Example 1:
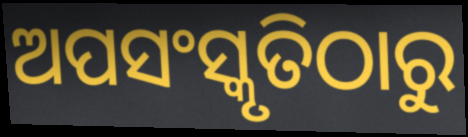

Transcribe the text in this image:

ଅପସଂସ୍କୃତିଠାରୁ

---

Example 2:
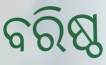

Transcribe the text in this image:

ବରିଷ୍ଠ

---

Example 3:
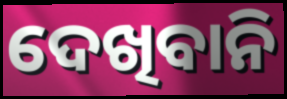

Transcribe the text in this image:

ଦେଖିବାନି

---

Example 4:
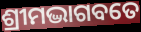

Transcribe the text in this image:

ଶ୍ରୀମଦ୍ଭାଗବତେ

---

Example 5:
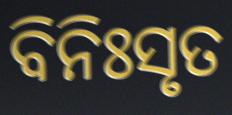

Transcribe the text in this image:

ବିନିଃସୃତ